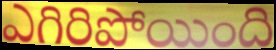
ఎగిరిపోయింది